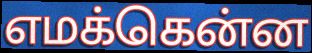
எமக்கென்ன